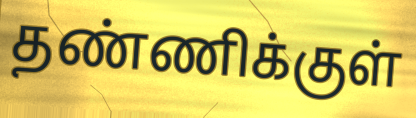
தண்ணிக்குள்